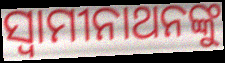
ସ୍ୱାମୀନାଥନଙ୍କୁ